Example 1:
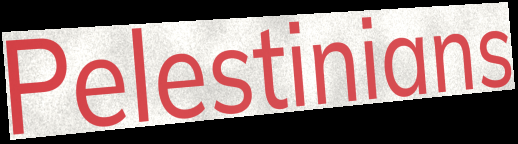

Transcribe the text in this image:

Pelestinians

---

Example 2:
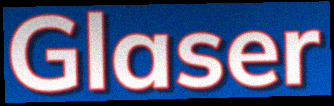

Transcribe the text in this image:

Glaser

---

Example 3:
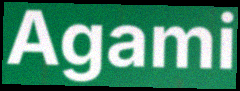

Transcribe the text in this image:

Agami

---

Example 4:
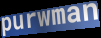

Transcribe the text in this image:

purwman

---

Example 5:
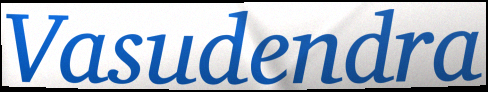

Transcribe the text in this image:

Vasudendra